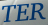
TER